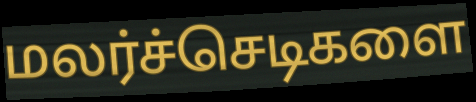
மலர்ச்செடிகளை